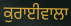
ਕੁਰਾਈਵਾਲਾ